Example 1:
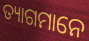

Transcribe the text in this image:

ତ୍ୟାଗମାନେ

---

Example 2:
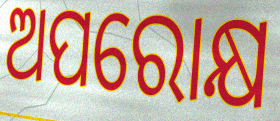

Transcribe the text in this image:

ଅପରୋକ୍ଷ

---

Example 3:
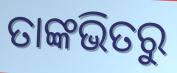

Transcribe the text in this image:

ତାଙ୍କଭିତରୁ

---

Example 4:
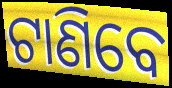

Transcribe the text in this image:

ଟାଣିବେ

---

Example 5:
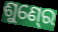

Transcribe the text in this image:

ଶୁଣ୍‍ରେ